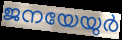
ജനയേയുർ